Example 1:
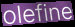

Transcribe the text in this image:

olefine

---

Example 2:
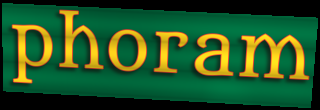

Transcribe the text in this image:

phoram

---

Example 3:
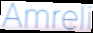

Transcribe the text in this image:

Amreli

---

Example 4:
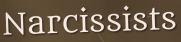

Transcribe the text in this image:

Narcissists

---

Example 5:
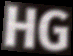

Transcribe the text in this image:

HG